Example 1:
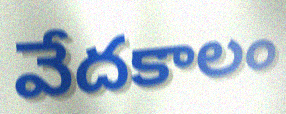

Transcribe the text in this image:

వేదకాలం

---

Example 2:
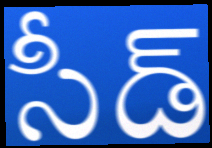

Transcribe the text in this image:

సీడ్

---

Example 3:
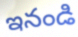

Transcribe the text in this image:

ఇనండి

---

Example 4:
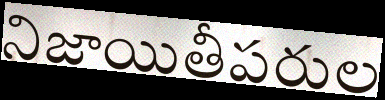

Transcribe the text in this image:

నిజాయితీపరుల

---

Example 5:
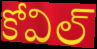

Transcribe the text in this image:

కోవిల్